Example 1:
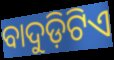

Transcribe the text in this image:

ବାଦୁଡ଼ିଟିଏ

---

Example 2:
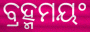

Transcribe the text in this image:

ବ୍ରହ୍ମମୟଂ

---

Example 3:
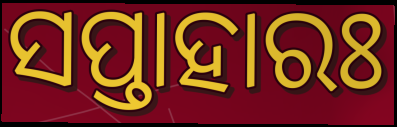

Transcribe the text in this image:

ସପ୍ତାହାରଃ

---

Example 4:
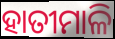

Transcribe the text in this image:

ହାତୀମାଳି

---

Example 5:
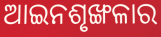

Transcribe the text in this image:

ଆଇନଶୃଙ୍ଖଳାର